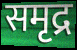
समृद्र